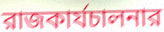
রাজকার্যচালনার